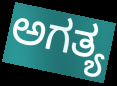
ಅಗತ್ಯ